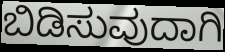
ಬಿಡಿಸುವುದಾಗಿ